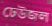
ঢেউজল